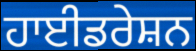
ਹਾਈਡਰੇਸ਼ਨ